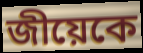
জীয়েকে